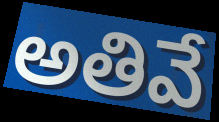
అతివే